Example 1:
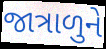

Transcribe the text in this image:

જાત્રાળુને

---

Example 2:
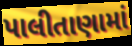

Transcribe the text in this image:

પાલીતાણામાં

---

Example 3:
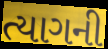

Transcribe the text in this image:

ત્‍યાગની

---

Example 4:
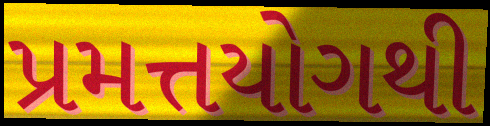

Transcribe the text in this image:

પ્રમત્તયોગથી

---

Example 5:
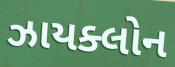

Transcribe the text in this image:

ઝાયક્લોન